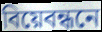
বিয়েবন্ধনে